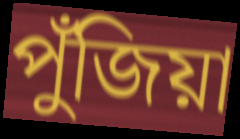
পুঁজিয়া